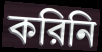
করিনি